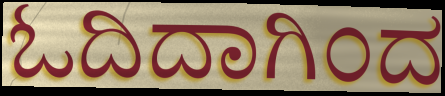
ಓದಿದಾಗಿಂದ